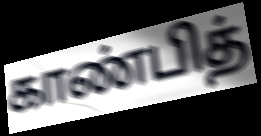
காண்பித்